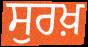
ਸੁਰਖ਼